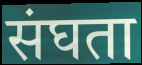
संघता